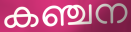
കഞ്ചന